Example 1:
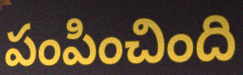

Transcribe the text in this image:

పంపించింది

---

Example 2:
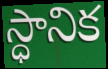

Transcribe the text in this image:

స్ధానిక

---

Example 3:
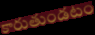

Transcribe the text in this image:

కారుతుండటం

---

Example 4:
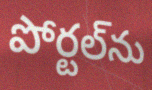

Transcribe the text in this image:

పోర్టల్‌ను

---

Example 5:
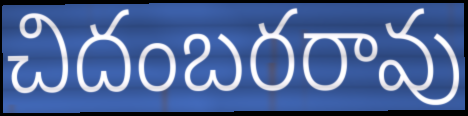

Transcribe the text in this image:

చిదంబరరావు